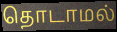
தொடாமல்